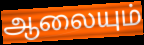
ஆலையும்